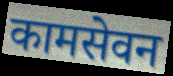
कामसेवन